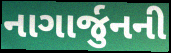
નાગાર્જુનની